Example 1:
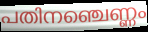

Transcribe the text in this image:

പതിനഞ്ചെണ്ണം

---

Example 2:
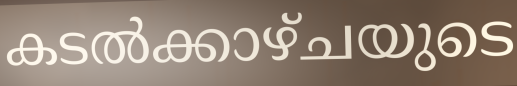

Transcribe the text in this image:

കടൽക്കാഴ്ചയുടെ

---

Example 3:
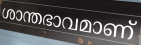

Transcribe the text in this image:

ശാന്തഭാവമാണ്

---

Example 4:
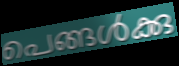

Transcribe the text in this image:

പെങ്ങൾക്കു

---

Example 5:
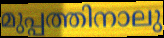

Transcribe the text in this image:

മുപ്പത്തിനാലു